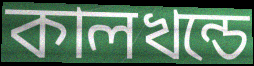
কালখন্ডে